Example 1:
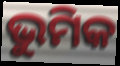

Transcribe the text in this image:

ଭୁମିକ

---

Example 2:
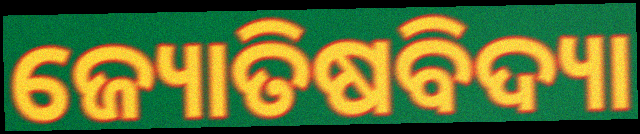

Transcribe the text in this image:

ଜ୍ୟୋତିଷବିଦ୍ୟା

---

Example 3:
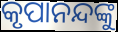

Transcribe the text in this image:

କୃପାନନ୍ଦଙ୍କୁ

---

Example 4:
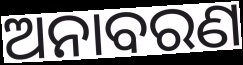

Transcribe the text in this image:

ଅନାବରଣ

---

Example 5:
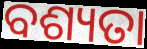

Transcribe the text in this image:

ବଶ୍ୟତା